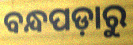
ବନ୍ଧପଡ଼ାରୁ